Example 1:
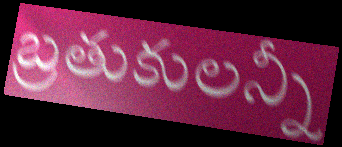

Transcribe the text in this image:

బ్రతుకులన్నీ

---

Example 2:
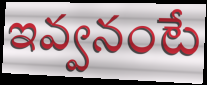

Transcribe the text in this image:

ఇవ్వనంటే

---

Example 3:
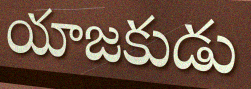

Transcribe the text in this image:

యాజకుడు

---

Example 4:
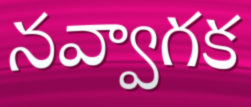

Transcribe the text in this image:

నవ్వాగక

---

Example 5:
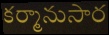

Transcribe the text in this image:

కర్మానుసార